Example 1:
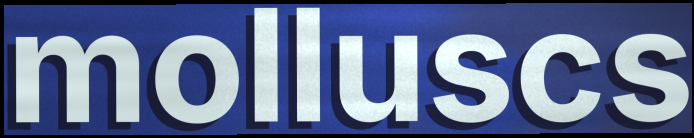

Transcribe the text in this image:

molluscs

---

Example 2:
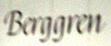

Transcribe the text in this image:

Berggren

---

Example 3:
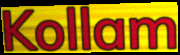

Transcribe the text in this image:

Kollam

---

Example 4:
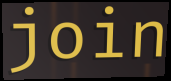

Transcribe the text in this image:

join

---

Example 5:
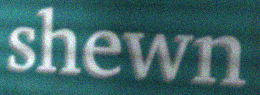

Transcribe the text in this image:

shewn